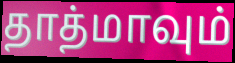
தாத்மாவும்